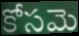
కోసమె